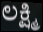
ಲಕ್ಷ್ಮಿ